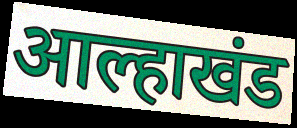
आल्हाखंड